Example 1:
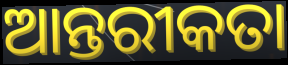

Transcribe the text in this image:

ଆନ୍ତରୀକତା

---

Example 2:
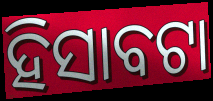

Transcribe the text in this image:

ହିସାବଟା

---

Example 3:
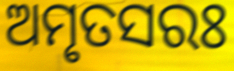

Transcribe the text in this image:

ଅମୃତସରଃ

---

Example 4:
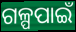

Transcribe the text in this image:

ଗଳ୍ପପାଇଁ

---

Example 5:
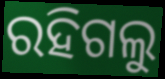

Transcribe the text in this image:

ରହିଗଲୁ